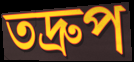
তদ্ৰুপ